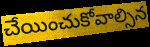
చేయించుకోవాల్సిన